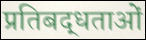
प्रतिबद्धताओं